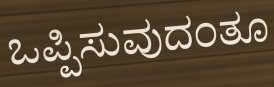
ಒಪ್ಪಿಸುವುದಂತೂ